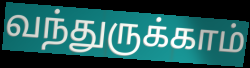
வந்துருக்காம்